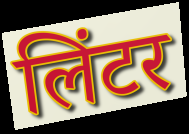
लिंटर